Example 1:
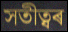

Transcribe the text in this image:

সতীত্বৰ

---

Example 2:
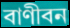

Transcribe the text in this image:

বাণীবন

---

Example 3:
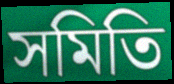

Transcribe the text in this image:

সমিতি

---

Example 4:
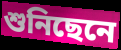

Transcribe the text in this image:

শুনিছেনে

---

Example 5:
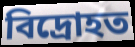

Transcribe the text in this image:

বিদ্ৰোহত